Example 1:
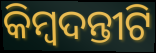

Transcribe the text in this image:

କିମ୍ୱଦନ୍ତୀଟି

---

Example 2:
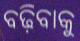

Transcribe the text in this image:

ବଢ଼ିବାକୁ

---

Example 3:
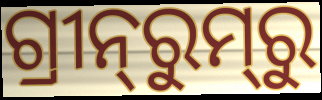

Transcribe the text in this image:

ଗ୍ରୀନ୍‌ରୁମ୍‌ରୁ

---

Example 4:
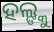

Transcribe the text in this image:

ହଲ୍ଙ୍କୁ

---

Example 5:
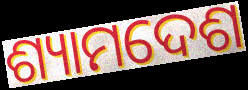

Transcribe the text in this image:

ଶ୍ୟାମଦେଶ